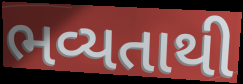
ભવ્યતાથી